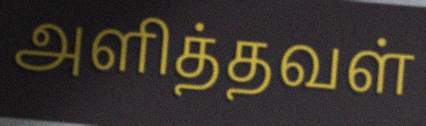
அளித்தவள்